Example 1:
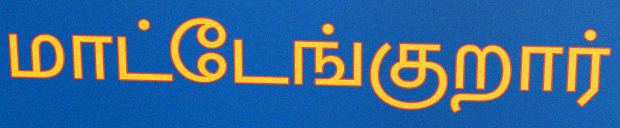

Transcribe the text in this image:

மாட்டேங்குறார்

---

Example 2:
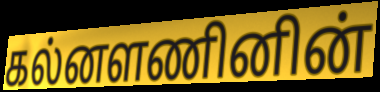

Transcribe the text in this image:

கல்னளணினின்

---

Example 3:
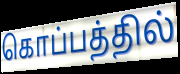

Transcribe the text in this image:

கொப்பத்தில்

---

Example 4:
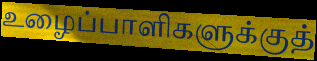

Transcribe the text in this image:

உழைப்பாளிகளுக்குத்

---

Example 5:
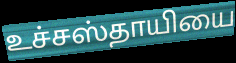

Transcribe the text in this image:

உச்சஸ்தாயியை